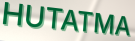
HUTATMA